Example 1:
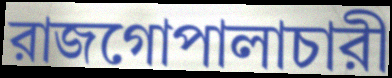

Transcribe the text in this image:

রাজগোপালাচারী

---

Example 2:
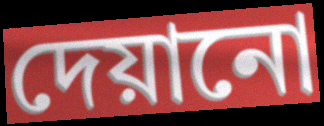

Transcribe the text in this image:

দেয়ানো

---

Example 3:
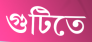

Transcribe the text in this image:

গুটিতে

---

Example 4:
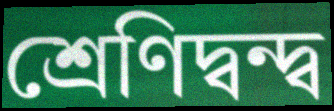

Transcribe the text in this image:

শ্রেণিদ্বন্দ্ব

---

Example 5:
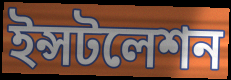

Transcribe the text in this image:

ইন্সটলেশন